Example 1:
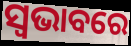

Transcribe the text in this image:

ସ୍ବଭାବରେ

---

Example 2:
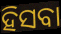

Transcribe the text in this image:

ହିସବା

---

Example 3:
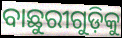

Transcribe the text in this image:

ବାଛୁରୀଗୁଡ଼ିକୁ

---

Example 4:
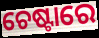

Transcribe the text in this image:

ଚେଷ୍ଟାରେ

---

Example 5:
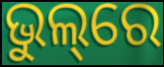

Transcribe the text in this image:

ଭୁଲ୍‌ରେ